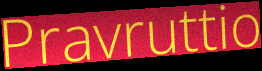
Pravruttio